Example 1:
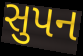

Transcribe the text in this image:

સુપન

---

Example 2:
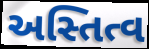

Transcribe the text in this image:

અસ્તિત્વ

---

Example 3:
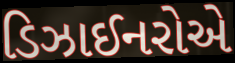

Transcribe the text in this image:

ડિઝાઈનરોએ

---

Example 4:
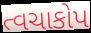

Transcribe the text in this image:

ત્વચાકોપ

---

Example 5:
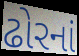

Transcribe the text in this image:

ઢોરનાં